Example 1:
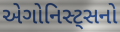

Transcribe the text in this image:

એગોનિસ્ટ્સનો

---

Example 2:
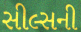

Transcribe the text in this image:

સીલ્સની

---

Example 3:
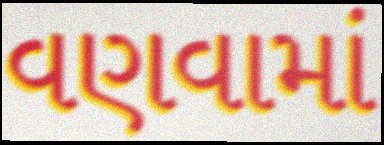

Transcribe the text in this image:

વણવામાં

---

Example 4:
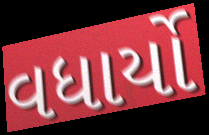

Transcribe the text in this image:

વધાર્યો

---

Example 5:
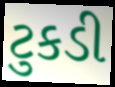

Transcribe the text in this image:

ટુકડી